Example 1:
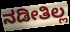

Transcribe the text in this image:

ನಡೀತಿಲ್ಲ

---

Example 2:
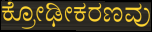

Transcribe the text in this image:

ಕ್ರೋಢೀಕರಣವು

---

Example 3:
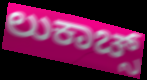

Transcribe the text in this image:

ಲುಕಾಚ್ಸ್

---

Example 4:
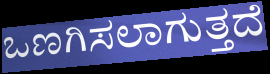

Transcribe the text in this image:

ಒಣಗಿಸಲಾಗುತ್ತದೆ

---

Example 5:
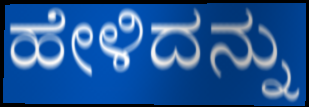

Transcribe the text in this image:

ಹೇಳಿದನ್ನು